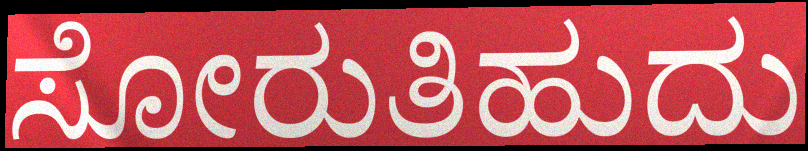
ಸೋರುತಿಹುದು